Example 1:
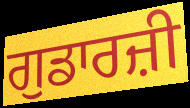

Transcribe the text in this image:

ਗੁਡਾਰਜ਼ੀ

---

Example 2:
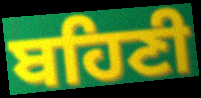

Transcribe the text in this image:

ਬਹਿਣੀ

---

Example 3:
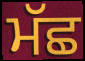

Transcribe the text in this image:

ਮੱਛ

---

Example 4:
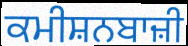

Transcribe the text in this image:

ਕਮੀਸ਼ਨਬਾਜ਼ੀ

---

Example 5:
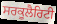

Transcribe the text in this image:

ਸਰਕੂਲੈਰਿਟੀ